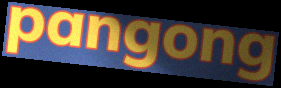
pangong